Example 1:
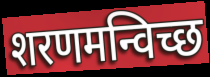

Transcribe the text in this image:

शरणमन्विच्छ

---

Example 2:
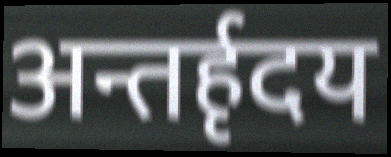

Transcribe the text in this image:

अन्तर्हृदय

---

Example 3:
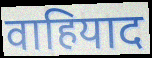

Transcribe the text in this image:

वाहियाद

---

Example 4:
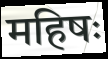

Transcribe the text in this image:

महिषः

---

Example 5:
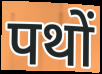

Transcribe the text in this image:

पथों